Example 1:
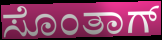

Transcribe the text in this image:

ಸೊಂತಾಗ್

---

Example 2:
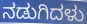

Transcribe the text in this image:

ನಡುಗಿದಳು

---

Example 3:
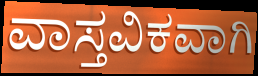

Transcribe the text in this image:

ವಾಸ್ತವಿಕವಾಗಿ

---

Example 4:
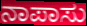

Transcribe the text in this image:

ನಾಪಾಸು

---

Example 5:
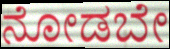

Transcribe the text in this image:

ನೋಡಬೇ